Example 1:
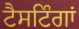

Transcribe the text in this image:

ਟੈਸਟਿੰਗਾਂ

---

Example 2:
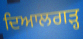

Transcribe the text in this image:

ਦਿਆਲਗੜ੍ਹ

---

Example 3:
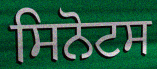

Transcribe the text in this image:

ਸਿਨੋਟਸ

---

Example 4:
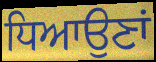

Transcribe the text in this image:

ਧਿਆਉਣਾਂ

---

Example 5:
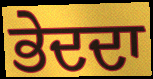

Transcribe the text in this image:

ਭੇਦਦਾ